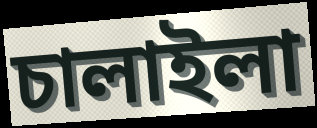
চালাইলা